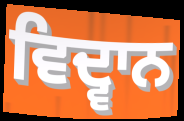
ਵਿਦ੍ਵਾਨ